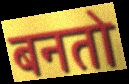
बनतो